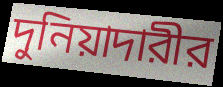
দুনিয়াদারীর